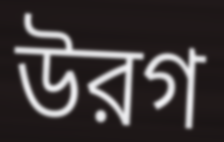
উরগ